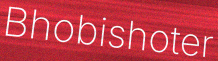
Bhobishoter